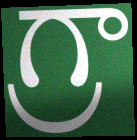
గ్రా